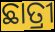
ଛାତ୍ରୀ